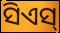
ସିଏସ୍